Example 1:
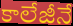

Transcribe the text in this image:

కాలేజీనే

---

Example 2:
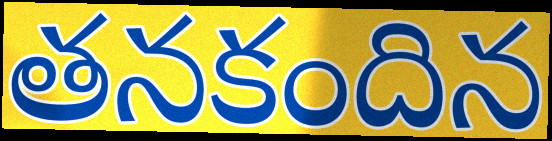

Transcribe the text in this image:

తనకందిన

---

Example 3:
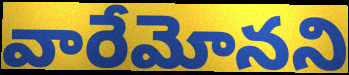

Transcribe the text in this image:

వారేమోనని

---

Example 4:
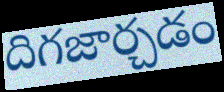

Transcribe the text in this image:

దిగజార్చడం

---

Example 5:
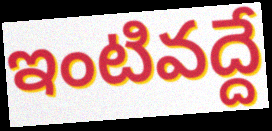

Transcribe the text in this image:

ఇంటివద్దే